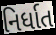
નિર્ધાત